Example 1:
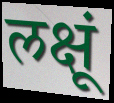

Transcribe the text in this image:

लक्षूं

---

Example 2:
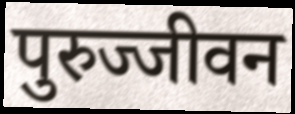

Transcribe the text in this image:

पुरुज्जीवन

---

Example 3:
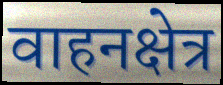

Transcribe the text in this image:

वाहनक्षेत्र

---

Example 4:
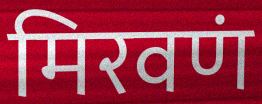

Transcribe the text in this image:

मिरवणं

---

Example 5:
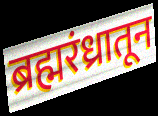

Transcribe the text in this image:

ब्रह्मरंध्रातून